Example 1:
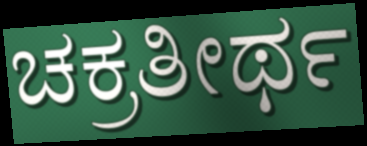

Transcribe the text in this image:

ಚಕ್ರತೀರ್ಥ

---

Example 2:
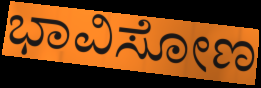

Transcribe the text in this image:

ಭಾವಿಸೋಣ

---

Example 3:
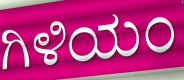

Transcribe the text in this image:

ಗಿಳಿಯಂ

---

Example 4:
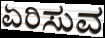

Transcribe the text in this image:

ಏರಿಸುವ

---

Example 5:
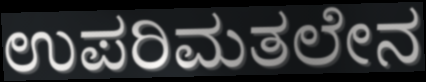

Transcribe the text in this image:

ಉಪರಿಮತಲೇನ